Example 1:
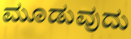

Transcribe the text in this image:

ಮೂಡುವುದು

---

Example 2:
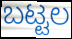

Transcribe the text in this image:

ಬಟ್ಟಲ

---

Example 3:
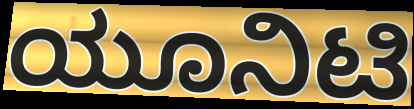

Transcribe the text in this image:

ಯೂನಿಟಿ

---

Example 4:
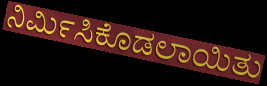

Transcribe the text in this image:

ನಿರ್ಮಿಸಿಕೊಡಲಾಯಿತು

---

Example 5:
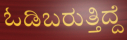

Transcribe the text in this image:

ಓಡಿಬರುತ್ತಿದ್ದೆ